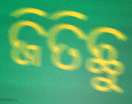
ଜିତିଛୁ